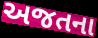
અજતના